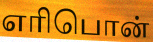
எரிபொன்